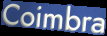
Coimbra